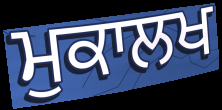
ਮੁਕਾਲਖ